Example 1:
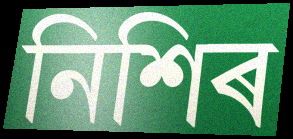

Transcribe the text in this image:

নিশিৰ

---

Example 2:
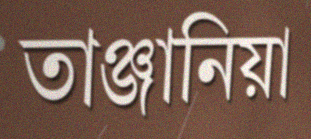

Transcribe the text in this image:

তাঞ্জানিয়া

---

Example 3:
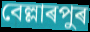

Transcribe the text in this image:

বেল্লাৰপুৰ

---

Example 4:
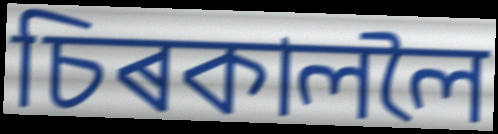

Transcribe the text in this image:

চিৰকাললৈ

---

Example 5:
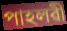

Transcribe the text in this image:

পাহলৱী